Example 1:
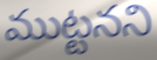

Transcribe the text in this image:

ముట్టనని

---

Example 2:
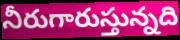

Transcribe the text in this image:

నీరుగారుస్తున్నది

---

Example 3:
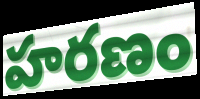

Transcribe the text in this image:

హరణం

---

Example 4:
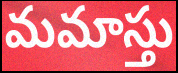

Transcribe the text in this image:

మమాస్తు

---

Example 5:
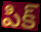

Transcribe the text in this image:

పిక్